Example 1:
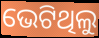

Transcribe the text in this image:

ଭେଟିଥିଲୁ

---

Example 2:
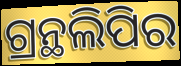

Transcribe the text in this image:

ଗ୍ରନ୍ଥଲିପିର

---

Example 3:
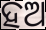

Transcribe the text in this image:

ହଅ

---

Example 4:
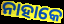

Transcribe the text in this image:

ନାହାକେ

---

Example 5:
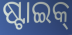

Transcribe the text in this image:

ଷ୍ଟାଇକ୍